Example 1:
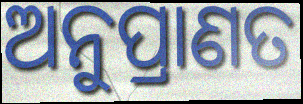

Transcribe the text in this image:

ଅନୁପ୍ରାଣତ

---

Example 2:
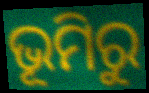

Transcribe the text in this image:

ଭୂମିରୁ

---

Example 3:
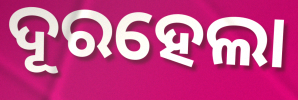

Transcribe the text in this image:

ଦୂରହେଲା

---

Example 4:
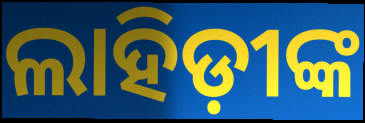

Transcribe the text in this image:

ଲାହିଡ଼ୀଙ୍କ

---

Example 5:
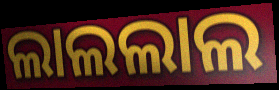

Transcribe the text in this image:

ଲାଲଲାଲ